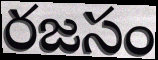
రజసం